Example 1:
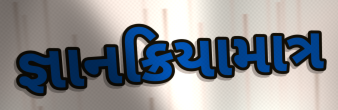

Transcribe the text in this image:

જ્ઞાનક્રિયામાત્ર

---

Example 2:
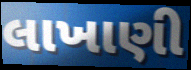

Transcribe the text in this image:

લાખાણી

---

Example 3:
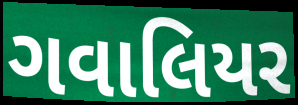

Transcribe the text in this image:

ગવાલિયર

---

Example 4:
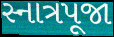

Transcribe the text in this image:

સ્નાત્રપૂજા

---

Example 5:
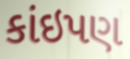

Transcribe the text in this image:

કાંઇપણ